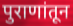
पुराणांतून